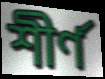
শীৰ্ণ